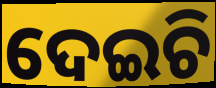
ଦେଇଚି